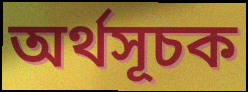
অর্থসূচক